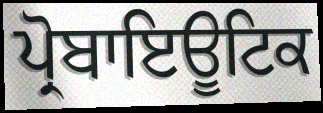
ਪ੍ਰੋਬਾਇਊਟਿਕ